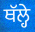
ਥੱਲ੍ਹੇ